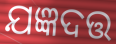
ଯଜ୍ଞଦତ୍ତ